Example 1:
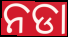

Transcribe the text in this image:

ନଡା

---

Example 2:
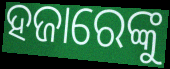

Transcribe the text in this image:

ହଜାରେଙ୍କୁ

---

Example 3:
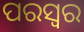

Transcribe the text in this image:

ପରସ୍ୱର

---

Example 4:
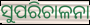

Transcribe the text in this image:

ସୁପରିଚାଳନା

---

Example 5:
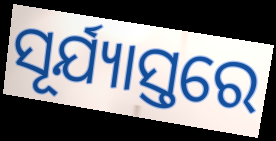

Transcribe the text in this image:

ସୂର୍ଯ୍ୟାସ୍ତରେ